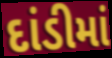
દાંડીમાં